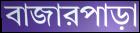
বাজারপাড়া